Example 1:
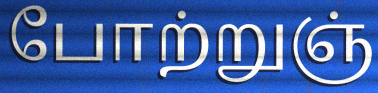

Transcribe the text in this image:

போற்றுஞ்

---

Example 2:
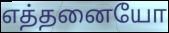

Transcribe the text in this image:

எத்தனையோ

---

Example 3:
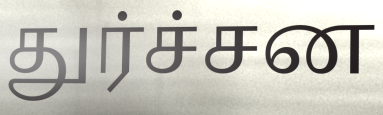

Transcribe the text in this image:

துர்ச்சன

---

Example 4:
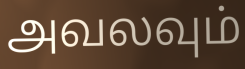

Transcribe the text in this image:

அவலவும்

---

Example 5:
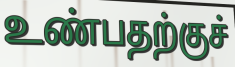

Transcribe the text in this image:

உண்பதற்குச்